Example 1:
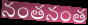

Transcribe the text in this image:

నంతనంత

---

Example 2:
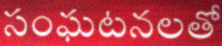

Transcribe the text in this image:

సంఘటనలతో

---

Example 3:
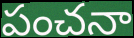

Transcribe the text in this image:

పంచనా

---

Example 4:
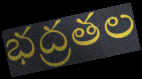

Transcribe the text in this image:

భద్రతల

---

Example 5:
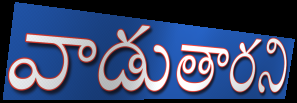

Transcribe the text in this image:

వాడుతారని